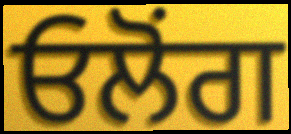
ਓਲੋਂਗ